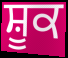
ਸ਼ੂਕ